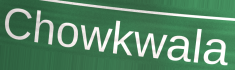
Chowkwala